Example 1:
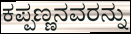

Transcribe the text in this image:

ಕಪ್ಪಣ್ಣನವರನ್ನು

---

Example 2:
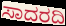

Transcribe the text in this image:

ಸಾದರದಿ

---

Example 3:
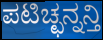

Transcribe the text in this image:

ಪಟಿಚ್ಛನ್ನನ್ತಿ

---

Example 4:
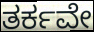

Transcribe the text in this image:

ತರ್ಕವೇ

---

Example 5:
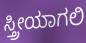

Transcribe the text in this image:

ಸ್ತ್ರೀಯಾಗಲಿ